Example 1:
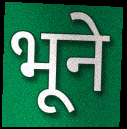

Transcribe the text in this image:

भूने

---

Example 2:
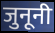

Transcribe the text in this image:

जुनूनी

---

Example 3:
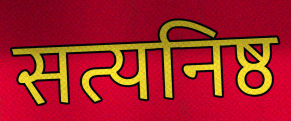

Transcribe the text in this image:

सत्यनिष्ठ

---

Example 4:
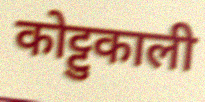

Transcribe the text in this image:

कोट्टुकाली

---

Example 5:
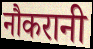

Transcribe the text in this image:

नौकरानी